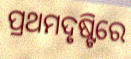
ପ୍ରଥମଦୃଷ୍ଟିରେ